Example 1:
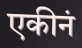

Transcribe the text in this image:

एकीनं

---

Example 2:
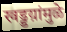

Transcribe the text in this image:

खड्डय़ांमुळे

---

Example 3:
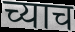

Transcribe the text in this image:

च्याच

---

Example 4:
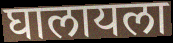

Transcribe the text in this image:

घालायला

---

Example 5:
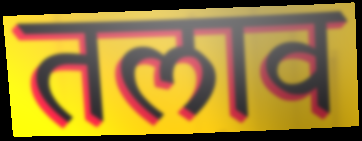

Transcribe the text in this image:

तलाव